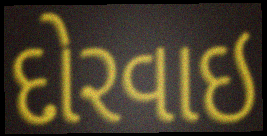
દોરવાઇ